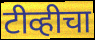
टीव्हीचा